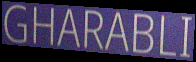
GHARABLI